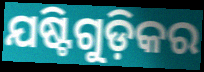
ଯଷ୍ଟିଗୁଡ଼ିକର